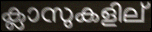
ക്ലാസുകളില്